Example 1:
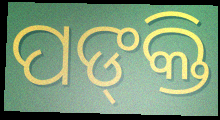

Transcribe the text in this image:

ପଙ୍‍କ୍ତି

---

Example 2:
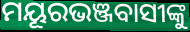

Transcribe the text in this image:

ମୟୂରଭଞ୍ଜବାସୀଙ୍କୁ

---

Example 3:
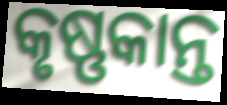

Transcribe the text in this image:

କୃଷ୍ଣକାନ୍ତ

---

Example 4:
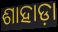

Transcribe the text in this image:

ଶାହାଡ଼ା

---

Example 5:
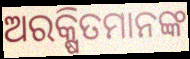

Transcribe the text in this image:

ଅରକ୍ଷିତମାନଙ୍କ